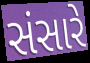
સંસારે